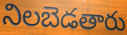
నిలబెడతారు